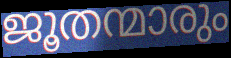
ജൂതന്മാരും